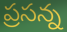
ప్రసన్న